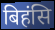
बिहंसि